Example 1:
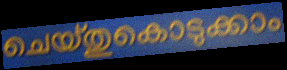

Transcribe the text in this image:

ചെയ്തുകൊടുക്കാം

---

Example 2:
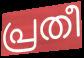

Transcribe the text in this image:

പ്രതീ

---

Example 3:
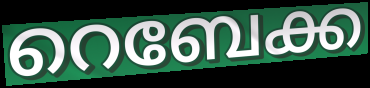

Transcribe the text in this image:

റെബേക്ക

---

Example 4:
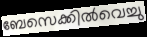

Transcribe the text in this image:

ബേസെക്കിൽവെച്ചു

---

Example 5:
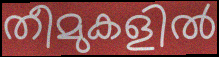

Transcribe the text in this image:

തീമുകളിൽ